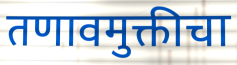
तणावमुक्तीचा